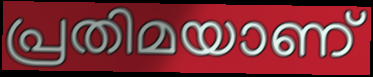
പ്രതിമയാണ്